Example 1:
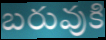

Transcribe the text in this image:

బరువుకి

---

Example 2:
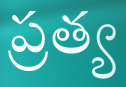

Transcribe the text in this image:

ప్రత్య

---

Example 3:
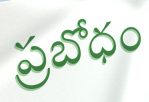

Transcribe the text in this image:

ప్రబోధం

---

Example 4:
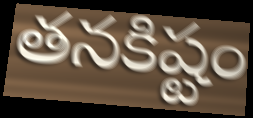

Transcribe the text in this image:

తనకిష్టం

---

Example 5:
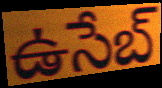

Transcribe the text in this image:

ఉసేబ్